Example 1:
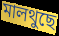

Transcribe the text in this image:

মালথুছে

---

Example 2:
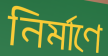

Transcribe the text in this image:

নিৰ্মাণে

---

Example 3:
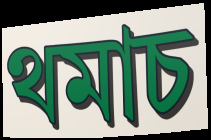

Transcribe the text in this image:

থমাচ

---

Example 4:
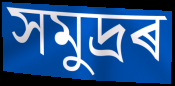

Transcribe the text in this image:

সমুদ্ৰৰ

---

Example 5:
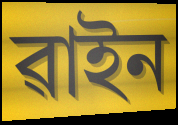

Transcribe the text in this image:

ৱাইন